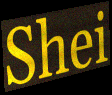
Shei